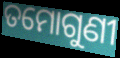
ତମୋଗୁଣୀ